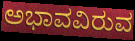
ಅಭಾವವಿರುವ